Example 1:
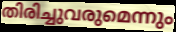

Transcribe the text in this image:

തിരിച്ചുവരുമെന്നും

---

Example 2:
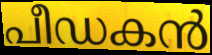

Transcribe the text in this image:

പീഡകൻ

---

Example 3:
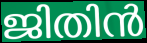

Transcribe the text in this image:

ജിതിൻ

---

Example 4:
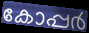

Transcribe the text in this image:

കോപ്പർ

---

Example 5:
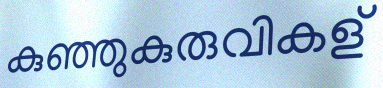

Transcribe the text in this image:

കുഞ്ഞുകുരുവികള്